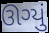
ઊગ્યું